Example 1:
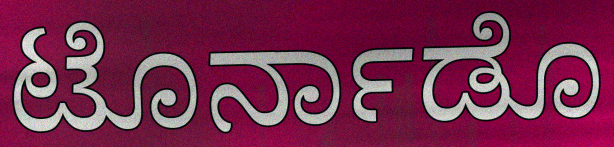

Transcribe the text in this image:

ಟೊರ್ನಾಡೊ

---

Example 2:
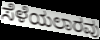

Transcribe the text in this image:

ಸೆಳೆಯಲಾರವು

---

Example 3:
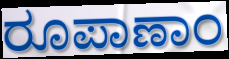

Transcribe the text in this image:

ರೂಪಾಣಾಂ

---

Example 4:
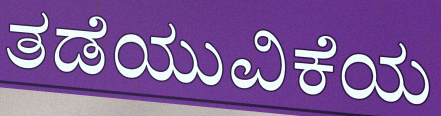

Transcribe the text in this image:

ತಡೆಯುವಿಕೆಯ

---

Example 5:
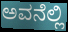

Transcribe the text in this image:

ಅವನೆಲ್ಲಿ